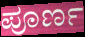
ಪೂರ್ಣ